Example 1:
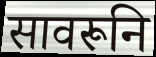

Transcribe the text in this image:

सावरूनि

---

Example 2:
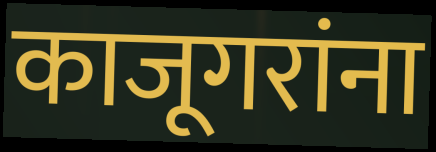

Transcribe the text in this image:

काजूगरांना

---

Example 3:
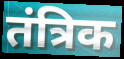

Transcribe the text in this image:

तंत्रिक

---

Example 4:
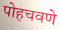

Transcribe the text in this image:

पोहचवणे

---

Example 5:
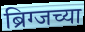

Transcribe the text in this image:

ब्रिग्जच्या